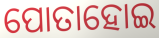
ପୋତାହୋଇ